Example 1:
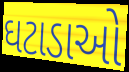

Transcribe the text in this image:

ઘટાડાઓ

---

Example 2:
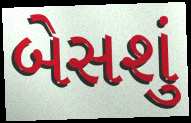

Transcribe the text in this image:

બેસશું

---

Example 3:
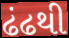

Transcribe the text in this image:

ઢંઢથી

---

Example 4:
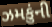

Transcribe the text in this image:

ઝમકુંની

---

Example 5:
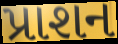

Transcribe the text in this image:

પ્રાશન